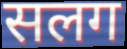
सलग